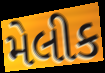
મેલીક